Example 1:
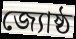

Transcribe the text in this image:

জ্যোষ্ঠ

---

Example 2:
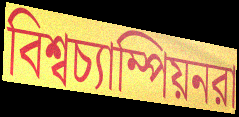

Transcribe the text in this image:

বিশ্বচ্যাম্পিয়নরা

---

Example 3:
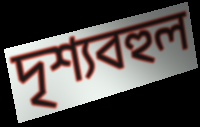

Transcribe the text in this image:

দৃশ্যবহুল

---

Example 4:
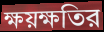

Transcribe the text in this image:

ক্ষয়ক্ষতির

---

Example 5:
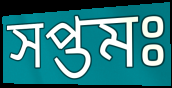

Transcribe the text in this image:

সপ্তমঃ